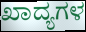
ಖಾದ್ಯಗಳ